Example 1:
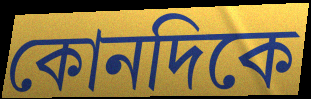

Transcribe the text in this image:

কোনদিকে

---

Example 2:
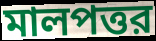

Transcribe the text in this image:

মালপত্তর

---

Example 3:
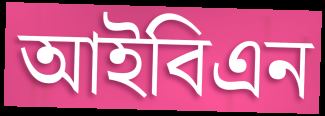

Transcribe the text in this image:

আইবিএন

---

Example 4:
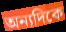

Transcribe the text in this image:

অন্যদিকে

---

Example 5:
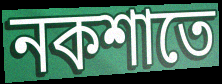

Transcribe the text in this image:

নকশাতে